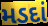
મડદાં